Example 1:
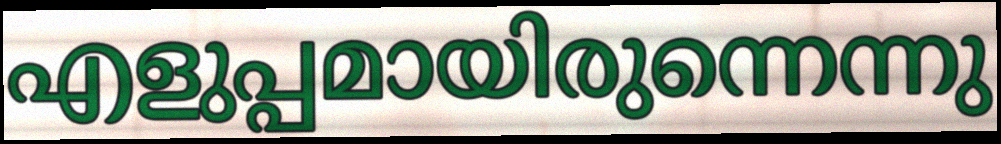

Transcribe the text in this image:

എളുപ്പമായിരുന്നെന്നു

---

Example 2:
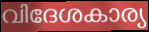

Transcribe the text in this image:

വിദേശകാര്യ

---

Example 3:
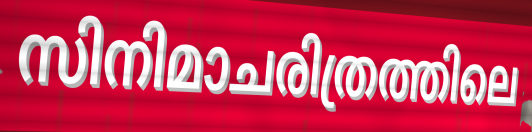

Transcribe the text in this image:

സിനിമാചരിത്രത്തിലെ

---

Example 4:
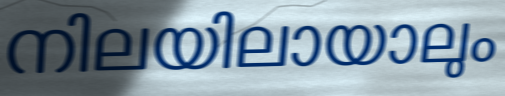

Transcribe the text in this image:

നിലയിലായാലും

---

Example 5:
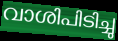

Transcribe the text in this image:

വാശിപിടിച്ചു